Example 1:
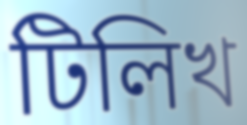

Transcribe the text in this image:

টিলিখ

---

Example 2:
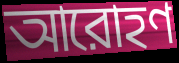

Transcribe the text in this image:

আরোহণ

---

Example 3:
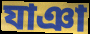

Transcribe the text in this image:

যাঞা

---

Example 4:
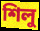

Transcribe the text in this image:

শিলু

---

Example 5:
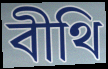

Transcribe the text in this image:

বীথি